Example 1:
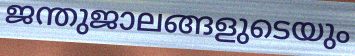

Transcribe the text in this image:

ജന്തുജാലങ്ങളുടെയും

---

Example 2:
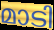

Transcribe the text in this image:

മാടി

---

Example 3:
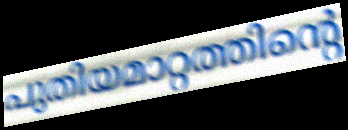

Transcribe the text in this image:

പുതിയമാറ്റത്തിന്റെ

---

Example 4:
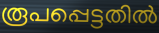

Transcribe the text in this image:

രൂപപ്പെട്ടതിൽ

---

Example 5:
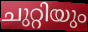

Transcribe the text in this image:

ചുറ്റിയും